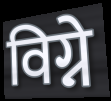
विग्ने